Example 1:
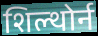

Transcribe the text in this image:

शिल्थोर्न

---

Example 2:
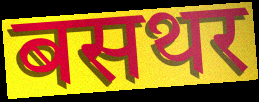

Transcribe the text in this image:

बसथर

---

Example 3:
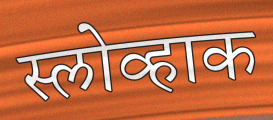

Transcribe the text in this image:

स्लोव्हाक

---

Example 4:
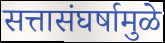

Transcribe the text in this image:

सत्तासंघर्षामुळे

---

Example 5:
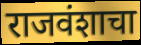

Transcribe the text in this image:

राजवंशाचा